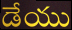
డేయు